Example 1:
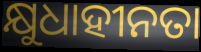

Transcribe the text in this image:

କ୍ଷୁଧାହୀନତା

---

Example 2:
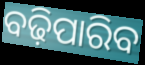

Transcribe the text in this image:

ବଢ଼ିପାରିବ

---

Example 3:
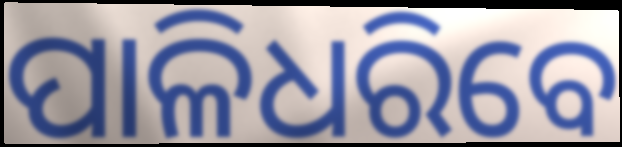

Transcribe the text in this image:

ପାଳିଧରିବେ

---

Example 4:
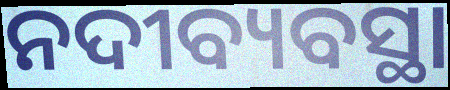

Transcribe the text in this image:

ନଦୀବ୍ୟବସ୍ଥା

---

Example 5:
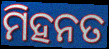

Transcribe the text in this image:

ମିହନତ